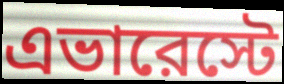
এভারেস্টে